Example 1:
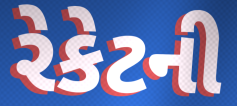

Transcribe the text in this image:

રેકેટની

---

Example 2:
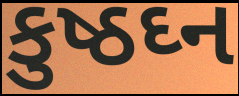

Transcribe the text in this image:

કુષ્ઠઘ્ન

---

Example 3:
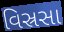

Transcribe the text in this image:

વિસ્રસા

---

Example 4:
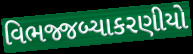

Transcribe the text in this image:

વિભજ્જબ્યાકરણીયો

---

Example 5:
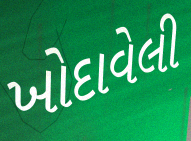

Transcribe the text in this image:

ખોદાવેલી